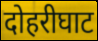
दोहरीघाट